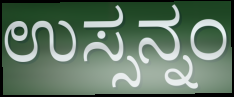
ಉಸ್ಸನ್ನಂ